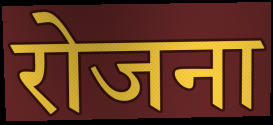
रोजना